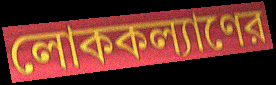
লোককল্যাণের